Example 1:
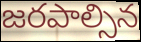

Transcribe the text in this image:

జరపాల్సిన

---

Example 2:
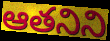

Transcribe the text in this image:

ఆతనిని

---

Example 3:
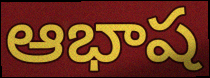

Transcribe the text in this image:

ఆభాష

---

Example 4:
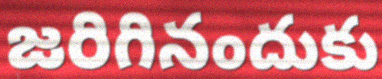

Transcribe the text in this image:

జరిగినందుకు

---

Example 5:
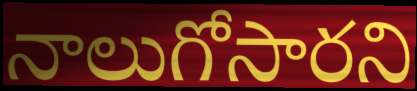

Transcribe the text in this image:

నాలుగోసారని